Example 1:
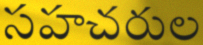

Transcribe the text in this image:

సహచరుల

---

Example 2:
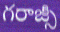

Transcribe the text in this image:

గరాజ్సీ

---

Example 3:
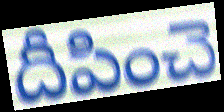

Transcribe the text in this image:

దీపించె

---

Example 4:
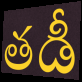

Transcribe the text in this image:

తడీ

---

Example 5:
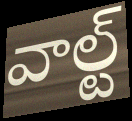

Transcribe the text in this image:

వాల్ట్